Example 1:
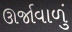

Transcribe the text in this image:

ઊર્જાવાળું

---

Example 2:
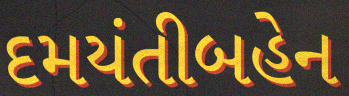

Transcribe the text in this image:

દમયંતીબહેન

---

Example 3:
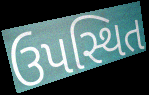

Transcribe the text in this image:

ઉપસ્થિત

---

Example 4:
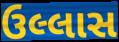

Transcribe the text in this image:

ઉલ્લાસ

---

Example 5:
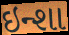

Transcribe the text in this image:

ઇન્શા